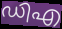
ഡിഎ